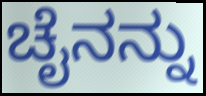
ಚೈನನ್ನು